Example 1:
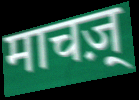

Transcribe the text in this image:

माचज़्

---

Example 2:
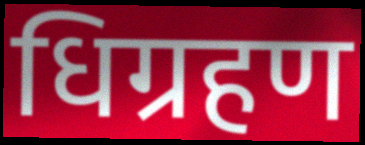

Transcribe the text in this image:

धिग्रहण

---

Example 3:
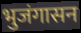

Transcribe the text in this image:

भुजंगासन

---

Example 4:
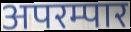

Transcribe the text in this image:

अपरम्पार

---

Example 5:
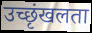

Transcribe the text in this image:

उच्छृंखलता